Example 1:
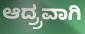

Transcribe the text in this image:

ಆದ್ರ್ರವಾಗಿ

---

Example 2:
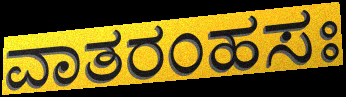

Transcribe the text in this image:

ವಾತರಂಹಸಃ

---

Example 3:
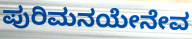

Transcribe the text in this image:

ಪುರಿಮನಯೇನೇವ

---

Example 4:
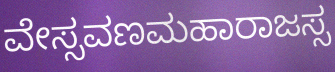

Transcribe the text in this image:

ವೇಸ್ಸವಣಮಹಾರಾಜಸ್ಸ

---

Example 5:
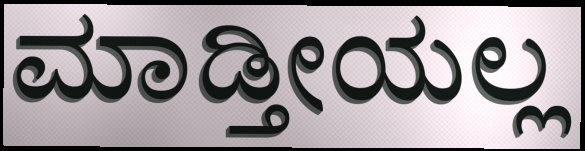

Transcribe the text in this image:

ಮಾಡ್ತೀಯಲ್ಲ